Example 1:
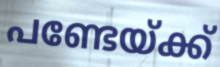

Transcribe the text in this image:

പണ്ടേയ്ക്ക്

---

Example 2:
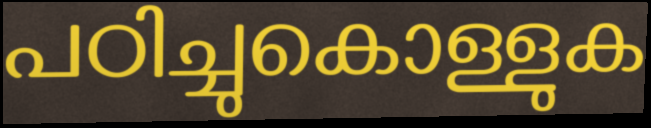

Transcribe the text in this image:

പഠിച്ചുകൊള്ളുക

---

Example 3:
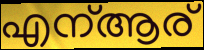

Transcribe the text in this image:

എന്ആര്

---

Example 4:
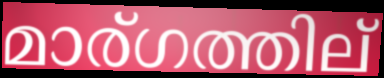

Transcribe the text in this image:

മാര്ഗത്തില്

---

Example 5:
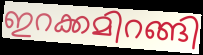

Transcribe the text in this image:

ഇറക്കമിറങ്ങി